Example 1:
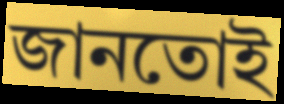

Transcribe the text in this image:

জানতোই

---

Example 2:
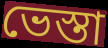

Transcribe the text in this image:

ভেস্তা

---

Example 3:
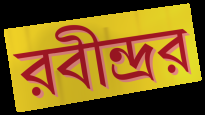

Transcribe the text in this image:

রবীন্দ্রর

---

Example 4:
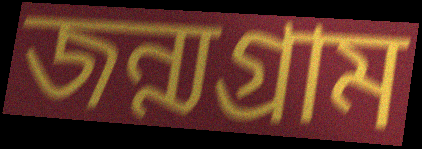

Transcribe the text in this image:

জন্মগ্রাম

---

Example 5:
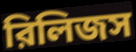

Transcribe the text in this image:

রিলিজস